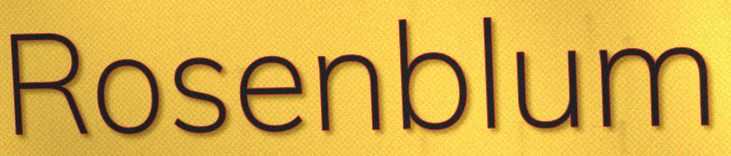
Rosenblum